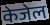
केजेल